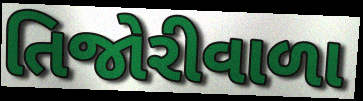
તિજોરીવાળા